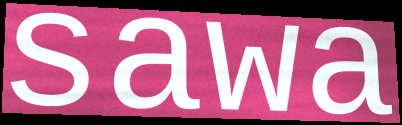
sawa